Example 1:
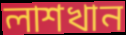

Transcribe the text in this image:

লাশখান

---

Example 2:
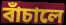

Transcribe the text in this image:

বাঁচালে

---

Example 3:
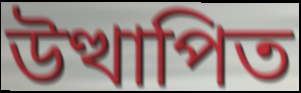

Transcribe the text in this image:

উত্থাপিত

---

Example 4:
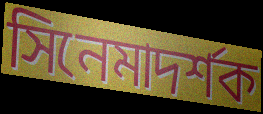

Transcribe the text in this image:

সিনেমাদর্শক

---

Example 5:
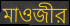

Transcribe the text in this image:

মাওজীর